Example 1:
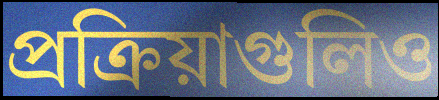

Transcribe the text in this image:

প্রক্রিয়াগুলিও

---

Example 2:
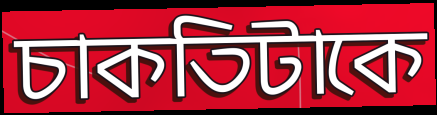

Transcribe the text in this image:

চাকতিটাকে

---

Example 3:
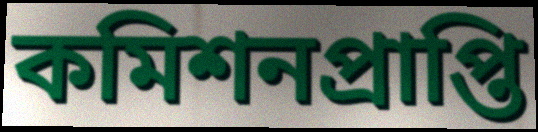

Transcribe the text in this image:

কমিশনপ্রাপ্তি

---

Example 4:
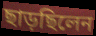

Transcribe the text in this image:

ছাড়ছিলেন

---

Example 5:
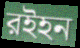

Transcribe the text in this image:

রইহন